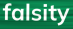
falsity